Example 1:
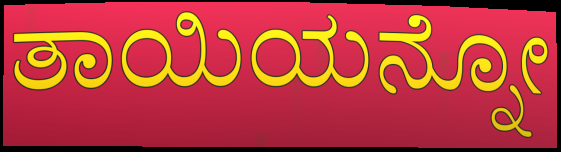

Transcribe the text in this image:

ತಾಯಿಯನ್ನೋ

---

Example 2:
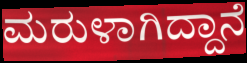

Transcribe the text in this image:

ಮರುಳಾಗಿದ್ದಾನೆ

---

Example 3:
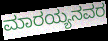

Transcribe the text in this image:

ಮಾರಯ್ಯನವರ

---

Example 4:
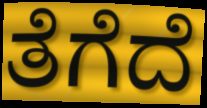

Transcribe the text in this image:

ತೆಗೆದೆ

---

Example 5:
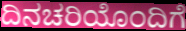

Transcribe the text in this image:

ದಿನಚರಿಯೊಂದಿಗೆ